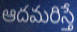
ఆదమరిస్తే